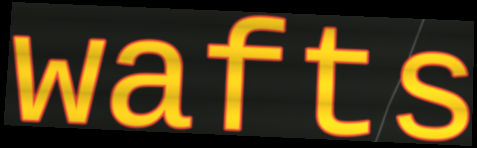
wafts